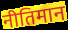
नीतिमान